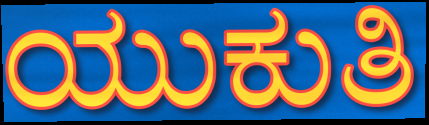
ಯುಕುತಿ